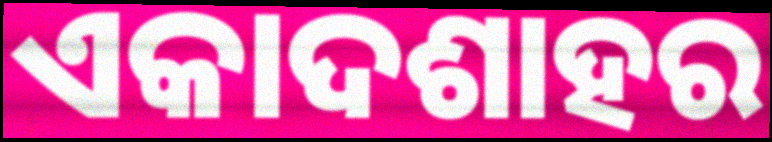
ଏକାଦଶାହର